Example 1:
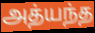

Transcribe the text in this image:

அத்யந்த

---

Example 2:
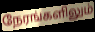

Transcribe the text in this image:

நேரங்களிலும்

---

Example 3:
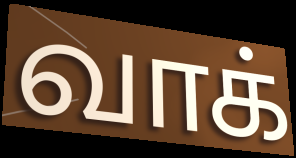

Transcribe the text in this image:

வாக்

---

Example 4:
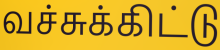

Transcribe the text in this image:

வச்சுக்கிட்டு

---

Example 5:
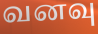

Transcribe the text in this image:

வனவு